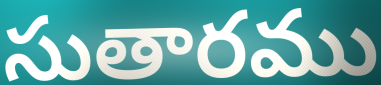
సుతారము